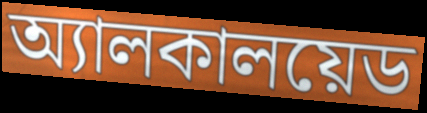
অ্যালকালয়েড